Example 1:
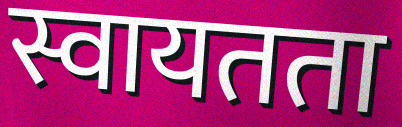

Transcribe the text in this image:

स्वायतता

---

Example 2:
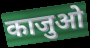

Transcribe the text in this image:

काजुओ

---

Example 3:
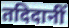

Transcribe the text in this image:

तदिदानीं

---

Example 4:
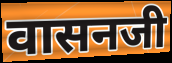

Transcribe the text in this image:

वासनजी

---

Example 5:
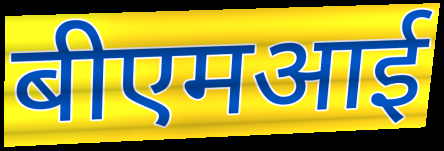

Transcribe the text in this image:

बीएमआई